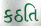
કઠતિ